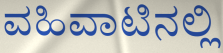
ವಹಿವಾಟಿನಲ್ಲಿ